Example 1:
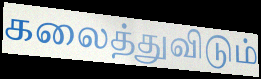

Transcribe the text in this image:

கலைத்துவிடும்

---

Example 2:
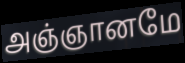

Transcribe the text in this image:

அஞ்ஞானமே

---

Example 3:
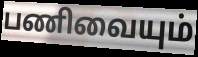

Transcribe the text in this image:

பணிவையும்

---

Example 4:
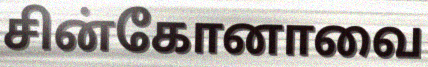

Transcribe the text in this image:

சின்கோனாவை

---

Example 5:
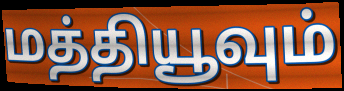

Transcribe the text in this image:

மத்தியூவும்